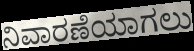
ನಿವಾರಣೆಯಾಗಲು